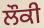
ਲੌਕੀ